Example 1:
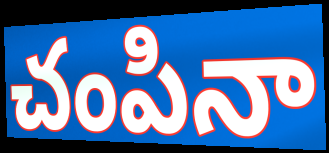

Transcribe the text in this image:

చంపినా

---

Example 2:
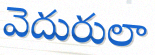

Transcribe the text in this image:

వెదురులా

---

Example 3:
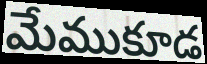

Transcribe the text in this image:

మేముకూడ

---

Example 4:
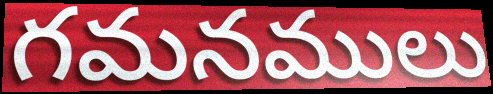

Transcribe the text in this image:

గమనములు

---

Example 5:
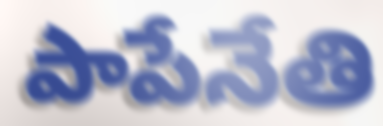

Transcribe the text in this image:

పాపేనేతి